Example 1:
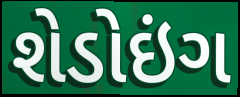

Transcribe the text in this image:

શેડોઇંગ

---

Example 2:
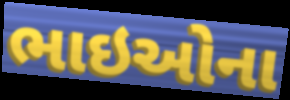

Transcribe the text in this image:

ભાઇઓના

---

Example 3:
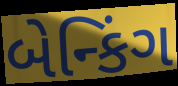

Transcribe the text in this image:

બેન્કિંગ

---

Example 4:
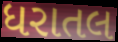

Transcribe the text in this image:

ધરાતલ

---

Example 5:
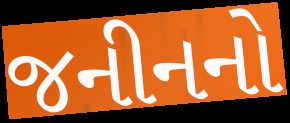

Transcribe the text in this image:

જનીનનો